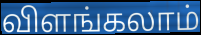
விளங்கலாம்